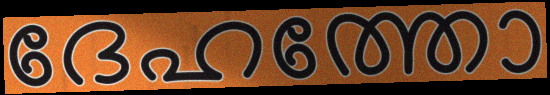
ദേഹത്തോ